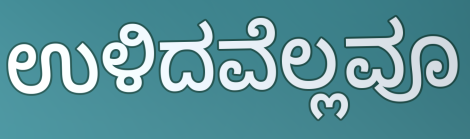
ಉಳಿದವೆಲ್ಲವೂ